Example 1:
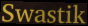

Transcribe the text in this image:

Swastik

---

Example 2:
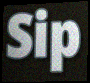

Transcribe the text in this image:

Sip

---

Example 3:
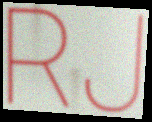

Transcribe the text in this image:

RJ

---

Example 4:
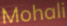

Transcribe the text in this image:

Mohali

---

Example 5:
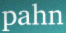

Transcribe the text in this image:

pahn